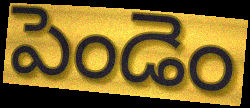
పెండెం